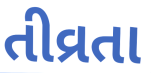
તીવ્રતા